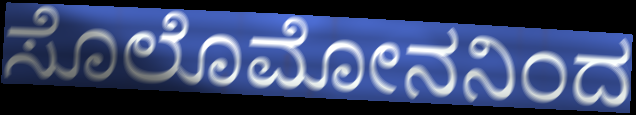
ಸೊಲೊಮೋನನಿಂದ